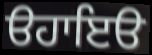
ੳਹਾਇੳ